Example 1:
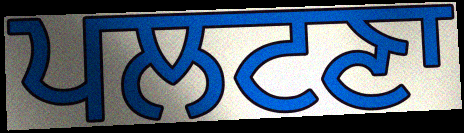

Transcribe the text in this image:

ਪਲਟਣਾ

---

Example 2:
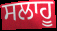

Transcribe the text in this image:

ਸਲਾਹੂ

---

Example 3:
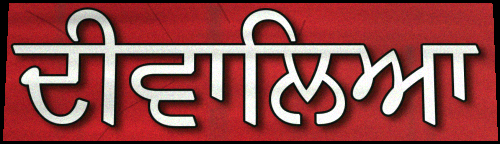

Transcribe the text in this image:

ਦੀਵਾਲਿਆ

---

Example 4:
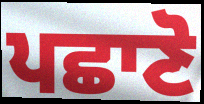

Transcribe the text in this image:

ਪਛਾਣੋ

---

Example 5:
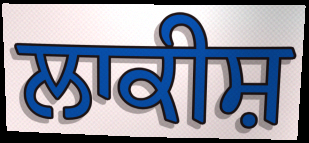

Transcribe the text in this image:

ਲਾਕੀਸ਼